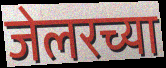
जेलरच्या